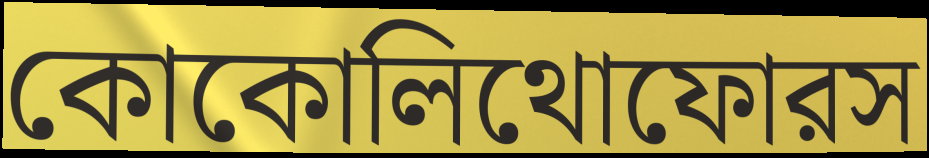
কোকোলিথোফোরস